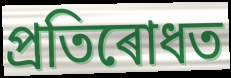
প্ৰতিৰোধত